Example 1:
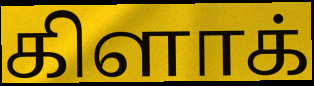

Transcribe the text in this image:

கிளாக்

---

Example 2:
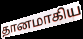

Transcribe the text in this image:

தானமாகிய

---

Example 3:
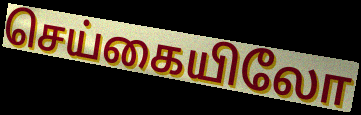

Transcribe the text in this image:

செய்கையிலோ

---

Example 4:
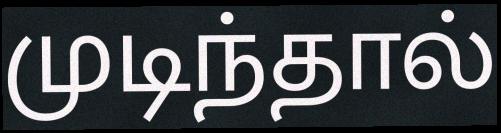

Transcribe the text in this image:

முடிந்தால்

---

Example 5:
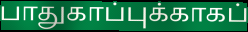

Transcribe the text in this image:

பாதுகாப்புக்காகப்